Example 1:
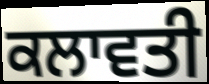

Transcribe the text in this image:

ਕਲਾਵਤੀ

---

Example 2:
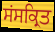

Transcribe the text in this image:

ਸਂਸਕ੍ਰਿਤ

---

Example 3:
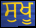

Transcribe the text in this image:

ਸੁਖੂ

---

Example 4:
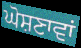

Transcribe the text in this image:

ਘੋਸ਼ਣਾਵਾਂ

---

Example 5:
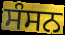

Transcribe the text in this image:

ਸੰਸਨ